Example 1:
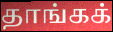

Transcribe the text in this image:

தாங்கக்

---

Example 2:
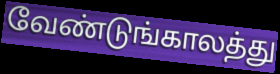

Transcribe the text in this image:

வேண்டுங்காலத்து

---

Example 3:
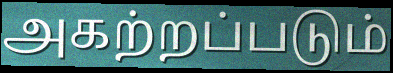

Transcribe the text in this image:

அகற்றப்படும்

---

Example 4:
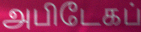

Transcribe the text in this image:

அபிடேகப்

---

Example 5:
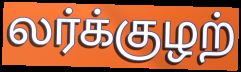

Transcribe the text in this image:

லர்க்குழற்